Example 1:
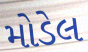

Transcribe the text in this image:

મોડેલ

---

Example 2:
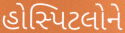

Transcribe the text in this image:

હોસ્પિટલોને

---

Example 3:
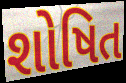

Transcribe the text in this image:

શોષિત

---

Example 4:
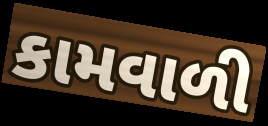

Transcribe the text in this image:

કામવાળી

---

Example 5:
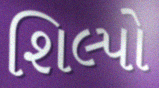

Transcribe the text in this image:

શિલ્પો